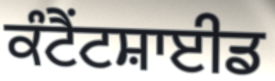
ਕੰਟੈਂਟਸ਼ਾਈਡ